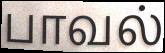
பாவல்